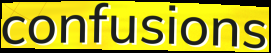
confusions